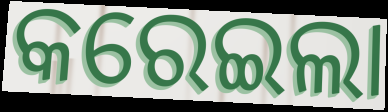
କରେଇଲା